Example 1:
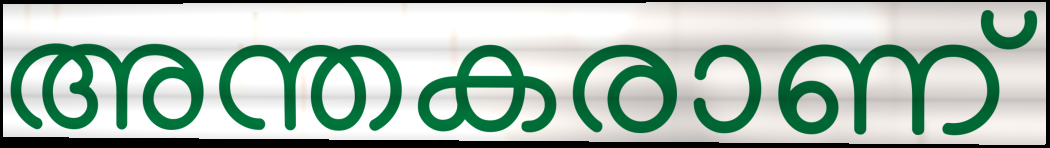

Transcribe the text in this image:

അന്തകരാണ്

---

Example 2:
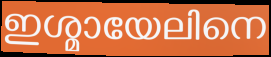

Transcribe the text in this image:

ഇശ്മായേലിനെ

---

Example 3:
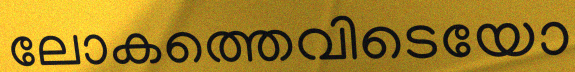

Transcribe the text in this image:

ലോകത്തെവിടെയോ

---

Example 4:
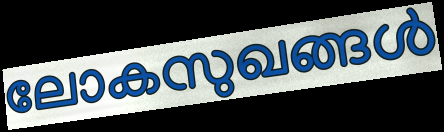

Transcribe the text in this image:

ലോകസുഖങ്ങൾ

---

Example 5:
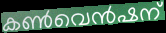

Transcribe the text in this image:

കൺവെൻഷന്